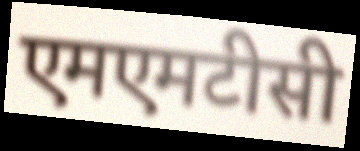
एमएमटीसी